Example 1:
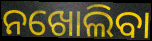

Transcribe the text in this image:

ନଖୋଲିବା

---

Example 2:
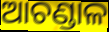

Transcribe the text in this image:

ଆଚଣ୍ଡାଳ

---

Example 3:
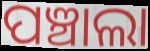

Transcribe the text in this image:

ପଞ୍ଚାଲା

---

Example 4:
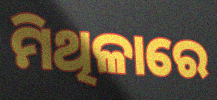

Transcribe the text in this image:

ମିଥିଳାରେ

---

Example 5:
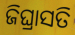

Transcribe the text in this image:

ଜିଘ୍ରାସତି